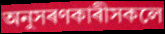
অনুসৰণকাৰীসকলে